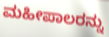
ಮಹೀಪಾಲರನ್ನು